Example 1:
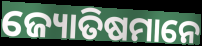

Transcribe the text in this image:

ଜ୍ୟୋତିଷମାନେ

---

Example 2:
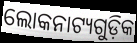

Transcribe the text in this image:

ଲୋକନାଟ୍ୟଗୁଡ଼ିକ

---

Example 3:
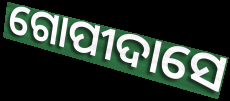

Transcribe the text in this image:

ଗୋପୀଦାସେ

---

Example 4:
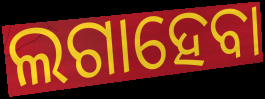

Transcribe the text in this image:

ଲଗାହେବା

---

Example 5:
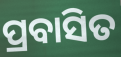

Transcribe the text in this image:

ପ୍ରବାସିତ